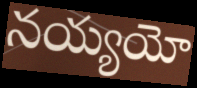
నయ్యయో